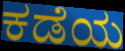
ಕಡೆಯ